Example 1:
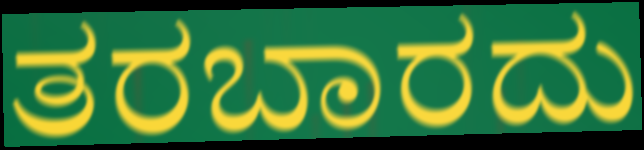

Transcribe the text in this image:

ತರಬಾರದು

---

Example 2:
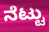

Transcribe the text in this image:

ನೆಟ್ಟು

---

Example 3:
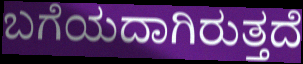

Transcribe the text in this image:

ಬಗೆಯದಾಗಿರುತ್ತದೆ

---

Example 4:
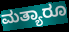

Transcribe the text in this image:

ಮತ್ಯಾರೂ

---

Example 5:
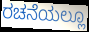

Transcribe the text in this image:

ರಚನೆಯಲ್ಲೂ